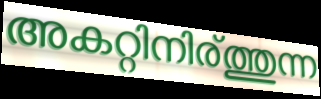
അകറ്റിനിര്ത്തുന്ന